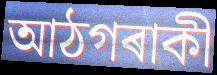
আঠগৰাকী